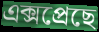
এক্সপ্ৰেছে